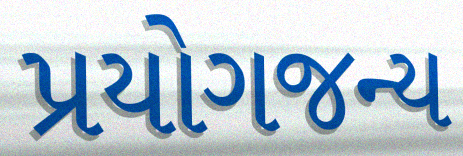
પ્રયોગજન્ય